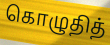
கொழுதித்